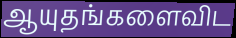
ஆயுதங்களைவிட